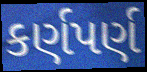
કર્ણપર્ણ